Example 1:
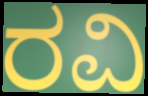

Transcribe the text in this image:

ರವಿ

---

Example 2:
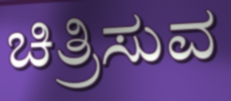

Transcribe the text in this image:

ಚಿತ್ರಿಸುವ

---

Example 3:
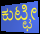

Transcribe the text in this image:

ಕುಟ್ಟೀ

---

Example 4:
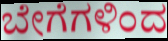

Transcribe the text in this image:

ಬೇಗೆಗಳಿಂದ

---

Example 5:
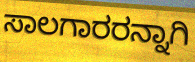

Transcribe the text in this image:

ಸಾಲಗಾರರನ್ನಾಗಿ